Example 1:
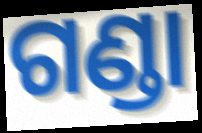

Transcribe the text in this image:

ଗଣ୍ଡା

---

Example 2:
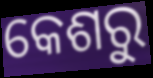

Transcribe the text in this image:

କେଶରୁ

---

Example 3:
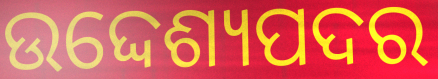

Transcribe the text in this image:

ଉଦ୍ଦେଶ୍ୟପଦର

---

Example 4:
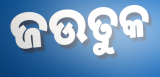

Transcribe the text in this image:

ଜଉତୁକ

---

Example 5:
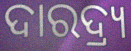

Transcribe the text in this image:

ଦାରଦ୍ର୍ୟ